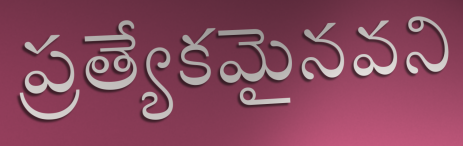
ప్రత్యేకమైనవని